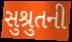
સુશ્રુતની